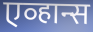
एव्हान्स